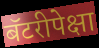
बॅटरीपेक्षा